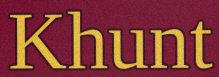
Khunt